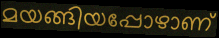
മയങ്ങിയപ്പോഴാണ്